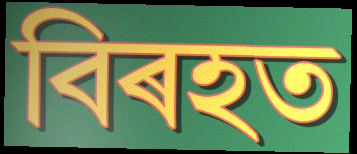
বিৰহত